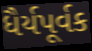
ધૈર્યપૂર્વક